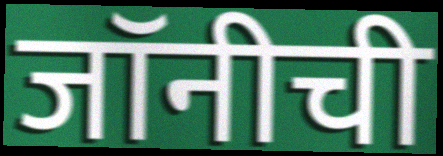
जॉनीची